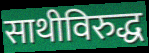
साथीविरुद्ध